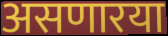
असणारया